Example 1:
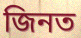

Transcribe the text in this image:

জিনত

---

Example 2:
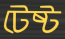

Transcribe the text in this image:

টেষ্ট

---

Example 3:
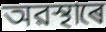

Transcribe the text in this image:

অৱস্থাৰে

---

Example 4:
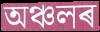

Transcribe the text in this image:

অঞ্চলৰ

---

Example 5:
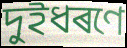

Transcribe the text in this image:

দুইধৰণে